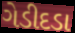
ગેડીદડા